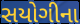
સયોગીના